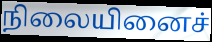
நிலையினைச்